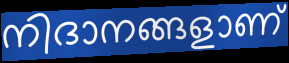
നിദാനങ്ങളാണ്